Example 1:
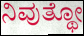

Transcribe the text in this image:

ನಿವುತ್ಥೋ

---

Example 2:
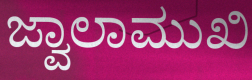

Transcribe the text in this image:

ಜ್ವಾಲಾಮುಖಿ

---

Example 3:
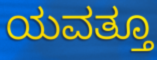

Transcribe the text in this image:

ಯವತ್ತೂ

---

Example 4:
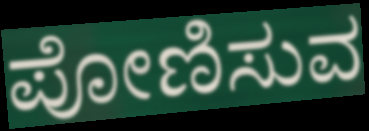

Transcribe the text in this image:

ಪೋಣಿಸುವ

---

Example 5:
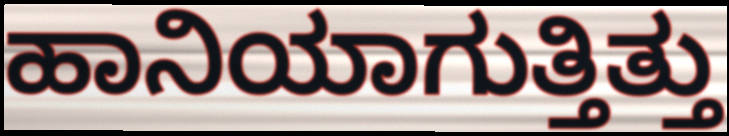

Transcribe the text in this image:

ಹಾನಿಯಾಗುತ್ತಿತ್ತು